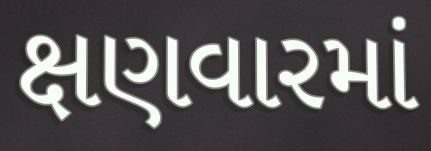
ક્ષણવારમાં